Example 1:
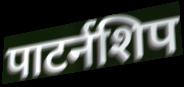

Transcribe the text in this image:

पाटर्नशिप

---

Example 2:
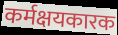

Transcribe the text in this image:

कर्मक्षयकारक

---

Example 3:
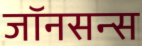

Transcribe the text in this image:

जॉनसन्स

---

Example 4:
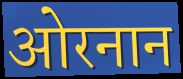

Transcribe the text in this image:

ओरनान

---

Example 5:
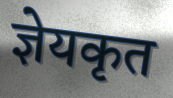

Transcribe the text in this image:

ज्ञेयकृत